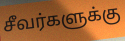
சீவர்களுக்கு